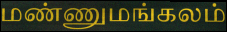
மண்ணுமங்கலம்